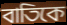
বাতিকে